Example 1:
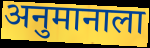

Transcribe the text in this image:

अनुमानाला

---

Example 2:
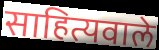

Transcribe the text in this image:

साहित्यवाले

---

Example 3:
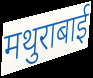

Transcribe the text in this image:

मथुराबाई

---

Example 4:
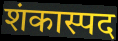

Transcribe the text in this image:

शंकास्पद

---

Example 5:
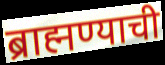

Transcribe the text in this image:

ब्राह्मण्याची